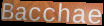
Bacchae